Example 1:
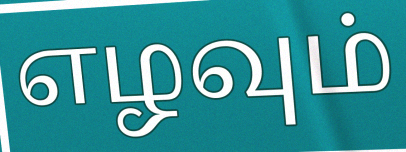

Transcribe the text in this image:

எழவும்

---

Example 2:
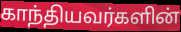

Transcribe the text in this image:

காந்தியவர்களின்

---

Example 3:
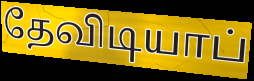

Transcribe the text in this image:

தேவிடியாப்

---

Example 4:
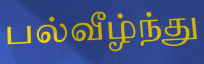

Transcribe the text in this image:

பல்வீழ்ந்து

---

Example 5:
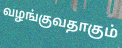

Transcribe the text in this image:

வழங்குவதாகும்